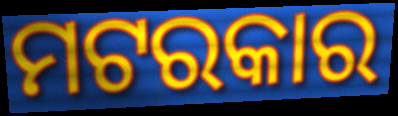
ମଟରକାର